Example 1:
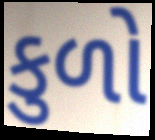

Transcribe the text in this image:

કુળો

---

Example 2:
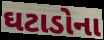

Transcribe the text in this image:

ઘટાડોના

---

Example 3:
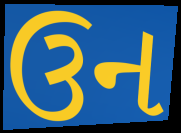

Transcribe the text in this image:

ઉન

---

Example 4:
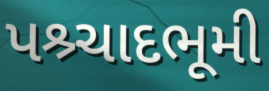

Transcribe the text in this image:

પશ્ર્ચાદભૂમી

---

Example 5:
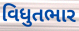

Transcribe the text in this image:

વિધુતભાર